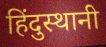
हिंदुस्थानी